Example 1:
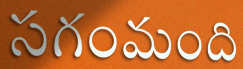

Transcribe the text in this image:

సగంమంది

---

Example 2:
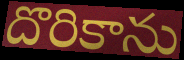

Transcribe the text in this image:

దొరికాను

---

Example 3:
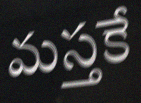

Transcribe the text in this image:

మస్తకే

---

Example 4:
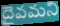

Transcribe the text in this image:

దైవమని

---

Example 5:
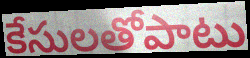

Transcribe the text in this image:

కేసులతోపాటు